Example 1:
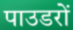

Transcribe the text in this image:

पाउडरों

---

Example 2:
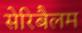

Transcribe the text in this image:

सेरिबैलम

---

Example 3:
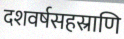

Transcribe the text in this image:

दशवर्षसहस्राणि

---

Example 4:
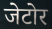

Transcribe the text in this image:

जेटोर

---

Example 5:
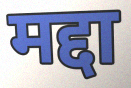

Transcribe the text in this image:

मद्दा